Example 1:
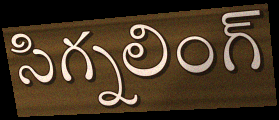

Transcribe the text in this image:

సిగ్నలింగ్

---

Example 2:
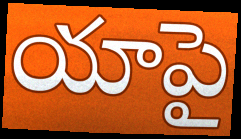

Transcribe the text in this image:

యాపై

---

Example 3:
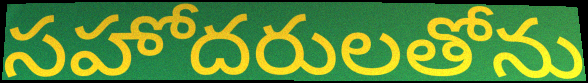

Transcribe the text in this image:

సహోదరులతోను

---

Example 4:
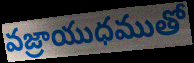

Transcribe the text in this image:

వజ్రాయుధముతో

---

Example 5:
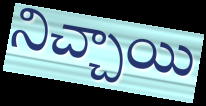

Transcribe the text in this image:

నిచ్చాయి